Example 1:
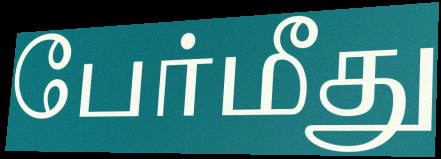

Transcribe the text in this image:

பேர்மீது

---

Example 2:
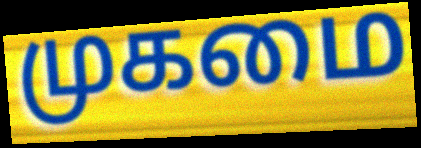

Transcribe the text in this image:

முகமை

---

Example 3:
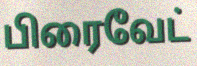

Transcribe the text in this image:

பிரைவேட்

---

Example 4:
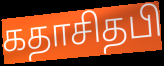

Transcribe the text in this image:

கதாசிதபி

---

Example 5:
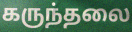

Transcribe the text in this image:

கருந்தலை